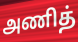
அணித்